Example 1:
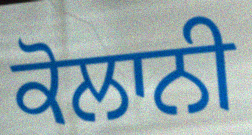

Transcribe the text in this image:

ਕੋਲਾਨੀ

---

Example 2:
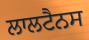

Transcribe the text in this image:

ਲਾਲਟੈਨਸ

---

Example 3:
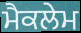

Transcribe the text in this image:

ਮੈਕਲੇਮ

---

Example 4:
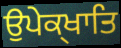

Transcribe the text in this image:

ਉਪੇਕ੍ਖਾਤਿ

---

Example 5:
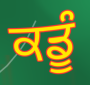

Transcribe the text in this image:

ਕਡੂੰ